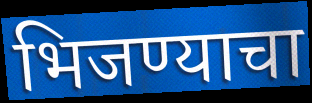
भिजण्याचा